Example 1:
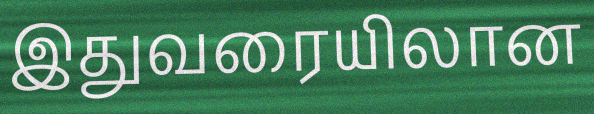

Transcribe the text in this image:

இதுவரையிலான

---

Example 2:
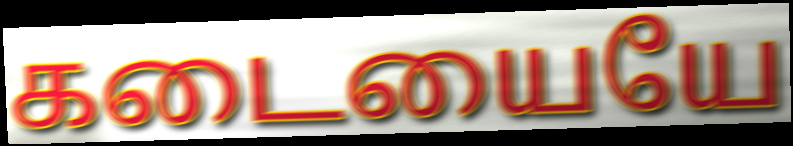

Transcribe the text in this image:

கடையையே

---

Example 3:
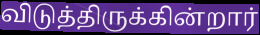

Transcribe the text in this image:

விடுத்திருக்கின்றார்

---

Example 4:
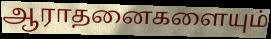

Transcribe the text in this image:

ஆராதனைகளையும்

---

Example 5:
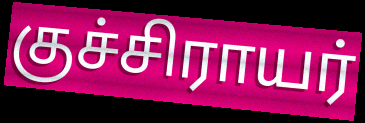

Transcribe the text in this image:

குச்சிராயர்